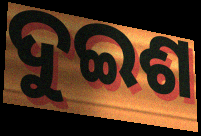
ଦୁଇଶ